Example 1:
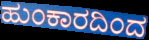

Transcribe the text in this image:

ಹುಂಕಾರದಿಂದ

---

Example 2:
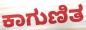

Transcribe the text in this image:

ಕಾಗುಣಿತ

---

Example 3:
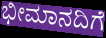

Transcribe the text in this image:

ಭೀಮಾನದಿಗೆ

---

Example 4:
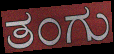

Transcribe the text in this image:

ತಂಗು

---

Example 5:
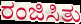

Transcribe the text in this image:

ರಂಜಿಸಿತು